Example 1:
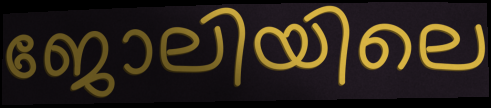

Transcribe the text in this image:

ജോലിയിലെ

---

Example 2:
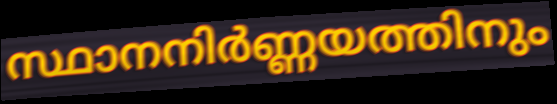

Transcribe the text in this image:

സ്ഥാനനിർണ്ണയത്തിനും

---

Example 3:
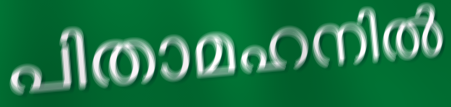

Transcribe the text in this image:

പിതാമഹനിൽ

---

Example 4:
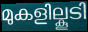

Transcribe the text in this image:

മുകളില്കൂടി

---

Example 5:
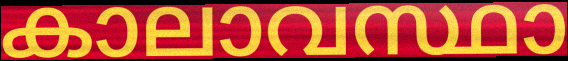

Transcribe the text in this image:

കാലാവസ്ഥാ